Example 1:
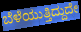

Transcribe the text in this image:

ಬೆಳೆಯುತ್ತಿದ್ದುದೇ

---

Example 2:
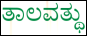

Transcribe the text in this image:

ತಾಲವತ್ಥು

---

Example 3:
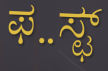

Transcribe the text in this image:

ಫ಼ಸ್ಟ್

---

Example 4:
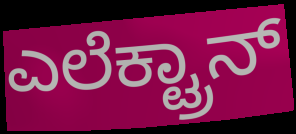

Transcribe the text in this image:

ಎಲೆಕ್ಟ್ರಾನ್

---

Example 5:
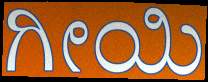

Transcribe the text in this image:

ಗೀಯಿ